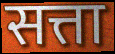
सत्ता